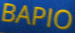
BAPIO